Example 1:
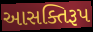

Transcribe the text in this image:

આસક્તિરૂપ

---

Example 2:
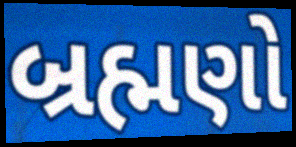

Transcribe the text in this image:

બ્રહ્મણો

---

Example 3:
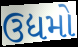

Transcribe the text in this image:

ઉદ્યમો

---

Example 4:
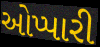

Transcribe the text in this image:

ઓપ્પારી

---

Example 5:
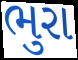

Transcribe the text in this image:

ભુરા